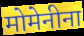
मोमेनीना